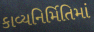
કાવ્યનિર્મિતિમાં